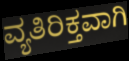
ವ್ಯತಿರಿಕ್ತವಾಗಿ